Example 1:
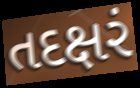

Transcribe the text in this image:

તદક્ષરં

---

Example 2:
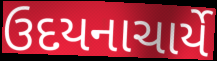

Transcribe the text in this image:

ઉદયનાચાર્યે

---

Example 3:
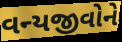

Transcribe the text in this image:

વન્યજીવોને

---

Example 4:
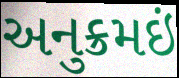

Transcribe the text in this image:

અનુક્રમઇં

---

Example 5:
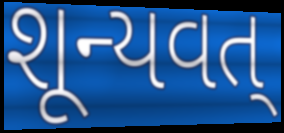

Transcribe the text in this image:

શૂન્યવત્